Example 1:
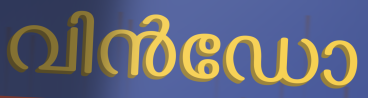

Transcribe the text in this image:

വിൻഡോ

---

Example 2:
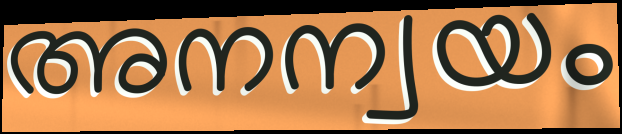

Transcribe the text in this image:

അനന്വയം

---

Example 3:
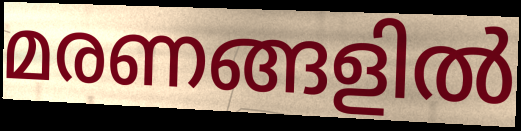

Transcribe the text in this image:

മരണങ്ങളിൽ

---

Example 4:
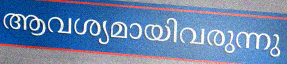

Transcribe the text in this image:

ആവശ്യമായിവരുന്നു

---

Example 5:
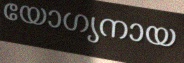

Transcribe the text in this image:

യോഗ്യനായ